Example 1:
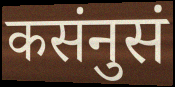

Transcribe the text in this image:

कसंनुसं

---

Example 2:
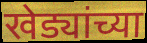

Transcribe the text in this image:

खेड्यांच्या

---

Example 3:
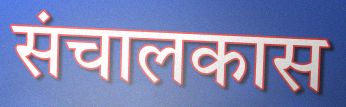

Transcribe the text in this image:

संचालकास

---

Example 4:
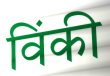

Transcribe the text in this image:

विंकी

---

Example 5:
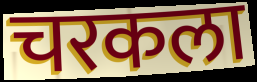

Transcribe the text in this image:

चरकला